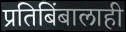
प्रतिबिंबालाही